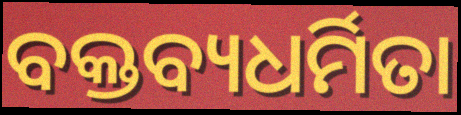
ବକ୍ତବ୍ୟଧର୍ମିତା